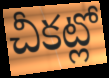
చీకట్లో